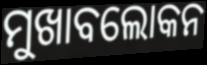
ମୁଖାବଲୋକନ